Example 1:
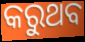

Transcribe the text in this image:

କରୁଥବ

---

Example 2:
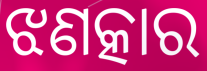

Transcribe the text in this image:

ଝଣତ୍କାର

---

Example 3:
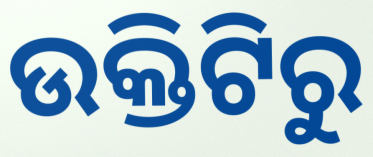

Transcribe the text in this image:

ଉକ୍ତିଟିରୁ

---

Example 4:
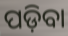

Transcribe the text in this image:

ପଡ଼ିବା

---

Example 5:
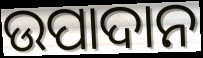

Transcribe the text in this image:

ଉପାଦାନ